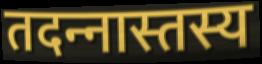
तदन्नास्तस्य